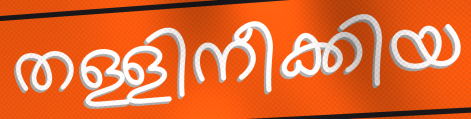
തള്ളിനീക്കിയ